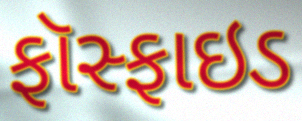
ફૉસ્ફાઇડ